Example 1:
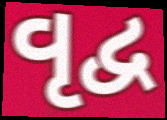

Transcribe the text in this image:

વૃદ્વ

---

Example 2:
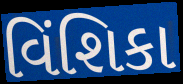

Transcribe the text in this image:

વિંશિકા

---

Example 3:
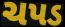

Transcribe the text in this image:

ચપડ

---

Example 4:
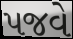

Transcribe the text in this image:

પજવે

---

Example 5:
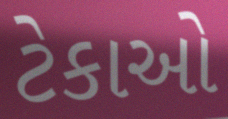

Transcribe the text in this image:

ટેકાઓ